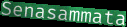
Senasammata